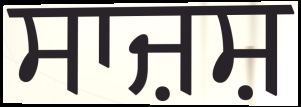
ਸਾਜ਼ਸ਼